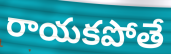
రాయకపోతే